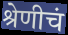
श्रेणीचं